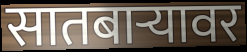
सातबाऱ्यावर